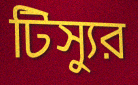
টিস্যুর